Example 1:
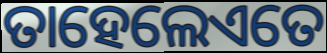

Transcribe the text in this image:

ତାହେଲେଏତେ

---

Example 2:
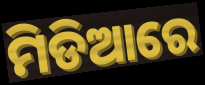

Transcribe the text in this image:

ମିଡିଆରେ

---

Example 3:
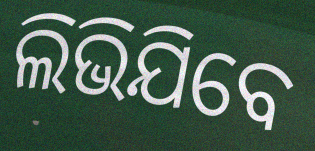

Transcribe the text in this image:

ଲିଭିଯିବେ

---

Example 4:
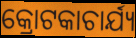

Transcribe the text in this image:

କ୍ରୋଟକାଚାର୍ଯ୍ୟ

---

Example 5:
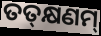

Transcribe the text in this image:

ତତ୍‌କ୍ଷଣମ୍